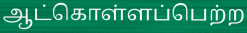
ஆட்கொள்ளப்பெற்ற